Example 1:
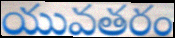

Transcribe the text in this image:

యువతరం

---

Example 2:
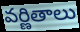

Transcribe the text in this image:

వర్ణితాలు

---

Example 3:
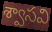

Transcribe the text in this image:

శ్వాసవి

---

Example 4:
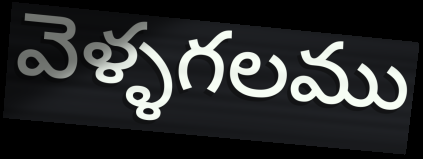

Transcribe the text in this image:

వెళ్ళగలము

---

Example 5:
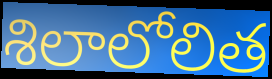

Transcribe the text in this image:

శిలాలోలిత